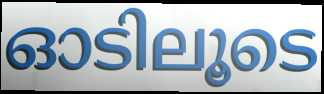
ഓടിലൂടെ